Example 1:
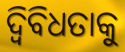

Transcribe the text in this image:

ଦ୍ୱିବିଧତାକୁ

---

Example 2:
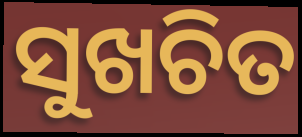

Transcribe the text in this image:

ସୁଖଚିତ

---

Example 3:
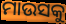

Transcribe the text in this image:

ମାଉସକୁ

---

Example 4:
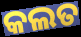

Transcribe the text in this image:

କଲତ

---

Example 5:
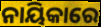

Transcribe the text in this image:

ନାୟିକାରେ